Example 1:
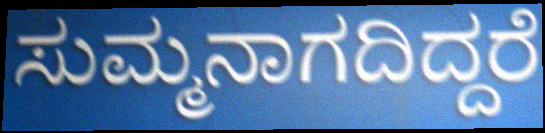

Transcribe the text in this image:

ಸುಮ್ಮನಾಗದಿದ್ದರೆ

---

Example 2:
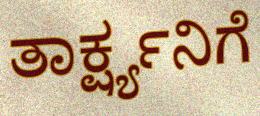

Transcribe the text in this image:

ತಾರ್ಕ್ಷ್ಯನಿಗೆ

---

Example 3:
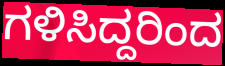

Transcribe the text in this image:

ಗಳಿಸಿದ್ದರಿಂದ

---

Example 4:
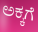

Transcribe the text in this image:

ಅಕ್ಕಗೆ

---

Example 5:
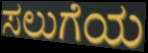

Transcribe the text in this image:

ಸಲುಗೆಯ